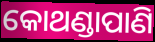
କୋଥଣ୍ଡାପାଣି